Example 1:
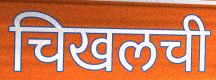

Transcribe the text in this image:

चिखलची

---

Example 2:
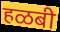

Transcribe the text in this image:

हळबी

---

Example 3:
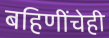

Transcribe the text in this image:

बहिणींचेही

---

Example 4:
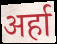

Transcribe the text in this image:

अर्हा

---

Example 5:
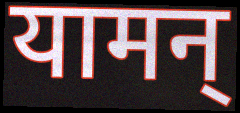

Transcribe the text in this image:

यामन्